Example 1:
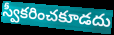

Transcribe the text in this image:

స్వీకరించకూడదు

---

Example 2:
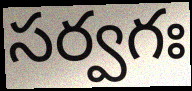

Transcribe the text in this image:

సర్వగః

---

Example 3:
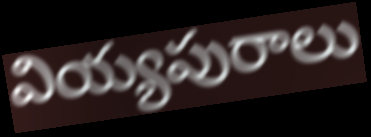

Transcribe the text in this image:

వియ్యపురాలు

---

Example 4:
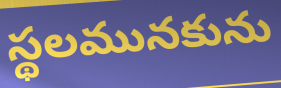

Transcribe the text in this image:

స్థలమునకును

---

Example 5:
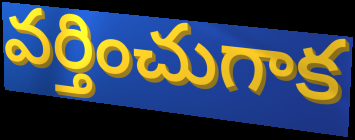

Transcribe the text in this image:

వర్తించుగాక